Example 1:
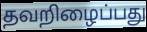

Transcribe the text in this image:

தவறிழைப்பது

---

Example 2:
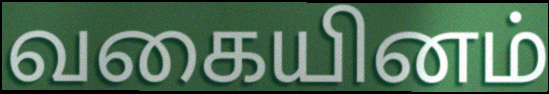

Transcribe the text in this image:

வகையினம்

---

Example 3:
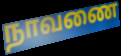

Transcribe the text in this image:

நாவணை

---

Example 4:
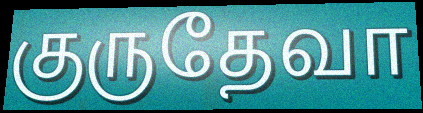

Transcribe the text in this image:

குருதேவா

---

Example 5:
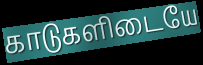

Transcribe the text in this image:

காடுகளிடையே